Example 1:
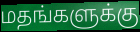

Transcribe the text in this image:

மதங்களுக்கு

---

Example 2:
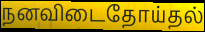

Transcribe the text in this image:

நனவிடைதோய்தல்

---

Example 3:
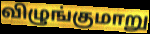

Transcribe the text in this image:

விழுங்குமாறு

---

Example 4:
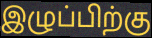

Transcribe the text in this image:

இழுப்பிற்கு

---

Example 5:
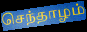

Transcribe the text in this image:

செந்தாழம்